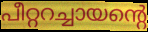
പീറ്ററച്ചായന്റെ